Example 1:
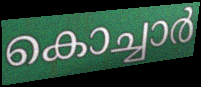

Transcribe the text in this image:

കൊച്ചാർ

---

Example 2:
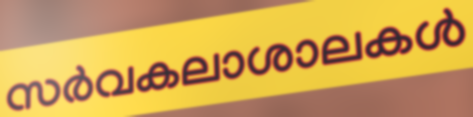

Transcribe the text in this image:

സർവകലാശാലകൾ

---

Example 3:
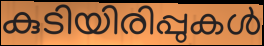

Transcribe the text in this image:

കുടിയിരിപ്പുകൾ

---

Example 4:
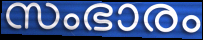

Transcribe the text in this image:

സംഭാരം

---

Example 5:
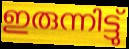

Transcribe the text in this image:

ഇരുന്നിട്ടു്